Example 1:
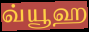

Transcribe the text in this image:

வ்யூஹ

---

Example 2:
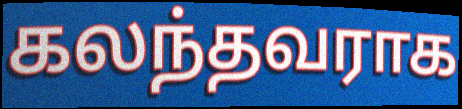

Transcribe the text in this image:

கலந்தவராக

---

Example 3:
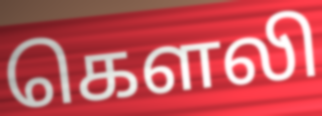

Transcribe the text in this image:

கௌலி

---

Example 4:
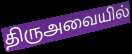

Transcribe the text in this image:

திருஅவையில்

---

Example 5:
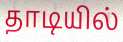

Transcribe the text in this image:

தாடியில்